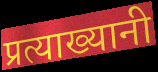
प्रत्याख्यानी